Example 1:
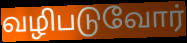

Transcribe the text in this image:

வழிபடுவோர்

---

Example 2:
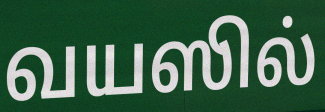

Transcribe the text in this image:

வயஸில்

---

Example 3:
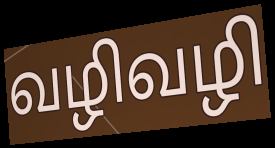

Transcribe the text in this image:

வழிவழி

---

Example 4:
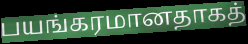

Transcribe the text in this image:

பயங்கரமானதாகத்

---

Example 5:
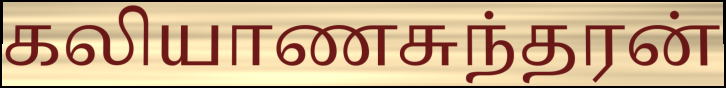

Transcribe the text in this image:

கலியாணசுந்தரன்